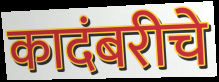
कादंबरीचे